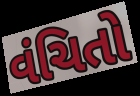
વંચિતો